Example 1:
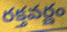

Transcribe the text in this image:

రక్తవర్ణం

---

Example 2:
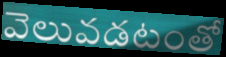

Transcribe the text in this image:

వెలువడటంతో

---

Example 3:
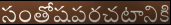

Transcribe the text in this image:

సంతోషపరచటానికి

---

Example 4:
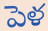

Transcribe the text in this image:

పెళ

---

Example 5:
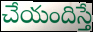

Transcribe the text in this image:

చేయందిస్తే